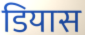
डियास